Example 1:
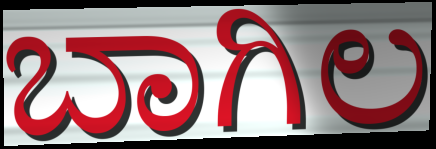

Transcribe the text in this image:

ಬಾಗಿಲ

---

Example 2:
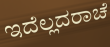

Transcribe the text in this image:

ಇದೆಲ್ಲದರಾಚೆ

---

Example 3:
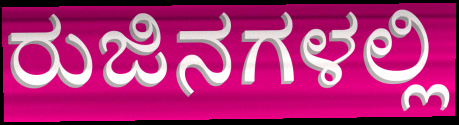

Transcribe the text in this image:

ರುಜಿನಗಳಲ್ಲಿ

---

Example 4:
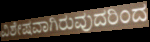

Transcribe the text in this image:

ವಿಶೇಷವಾಗಿರುವುದರಿಂದ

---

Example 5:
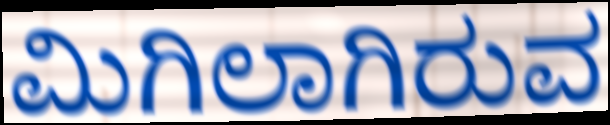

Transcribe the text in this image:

ಮಿಗಿಲಾಗಿರುವ